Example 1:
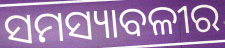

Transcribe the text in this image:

ସମସ୍ୟାବଳୀର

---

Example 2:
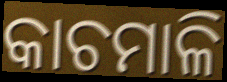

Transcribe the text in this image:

କାଚମାଳି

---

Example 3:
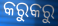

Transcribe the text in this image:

କରୁକରୁ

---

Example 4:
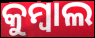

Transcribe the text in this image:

କୁମ୍ବାଲ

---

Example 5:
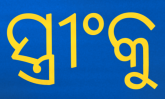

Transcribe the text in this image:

ସ୍ତ୍ରୀଂକୁ